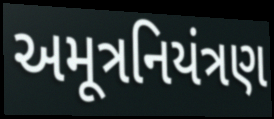
અમૂત્રનિયંત્રણ